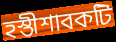
হস্তীশাবকটি